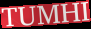
TUMHI